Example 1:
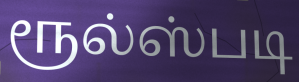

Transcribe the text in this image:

ரூல்ஸ்படி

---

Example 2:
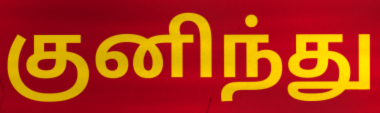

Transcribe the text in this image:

குனிந்து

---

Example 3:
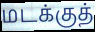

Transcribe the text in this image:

மடக்குத்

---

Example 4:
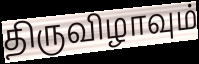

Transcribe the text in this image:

திருவிழாவும்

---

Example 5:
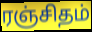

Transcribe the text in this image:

ரஞ்சிதம்